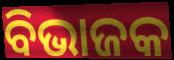
ବିଭାଜକ